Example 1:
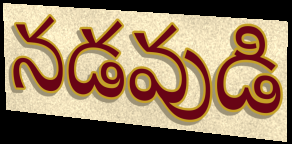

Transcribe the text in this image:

నడవుడి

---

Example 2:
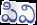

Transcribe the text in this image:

పివి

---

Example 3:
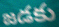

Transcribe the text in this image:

జడకు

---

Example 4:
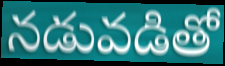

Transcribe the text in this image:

నడువడితో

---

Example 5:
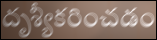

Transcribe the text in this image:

దృశ్యీకరించడం